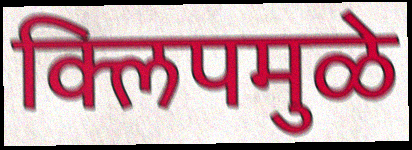
क्लिपमुळे